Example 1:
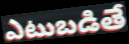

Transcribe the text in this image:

ఎటుబడితే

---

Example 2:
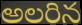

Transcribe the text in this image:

అలరిన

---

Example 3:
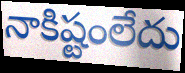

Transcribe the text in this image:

నాకిష్టంలేదు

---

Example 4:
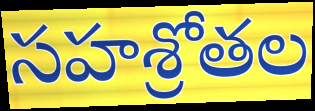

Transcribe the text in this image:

సహశ్రోతల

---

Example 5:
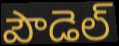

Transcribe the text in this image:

పౌడెల్